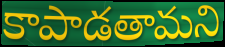
కాపాడతామని